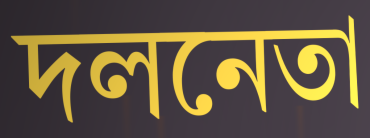
দলনেতা